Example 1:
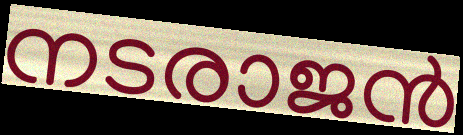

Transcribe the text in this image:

നടരാജൻ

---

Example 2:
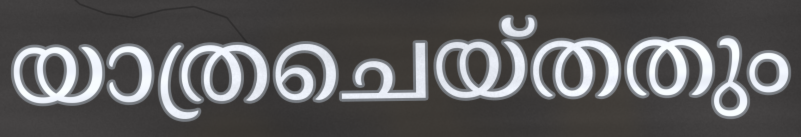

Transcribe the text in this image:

യാത്രചെയ്തതും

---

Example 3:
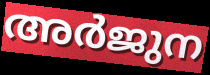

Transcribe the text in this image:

അർജുന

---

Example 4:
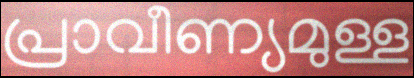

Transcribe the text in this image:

പ്രാവീണ്യമുള്ള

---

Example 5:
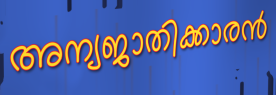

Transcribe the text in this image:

അന്യജാതിക്കാരൻ